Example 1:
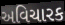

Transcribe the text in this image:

અવિચારક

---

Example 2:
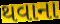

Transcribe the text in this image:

થવાના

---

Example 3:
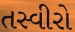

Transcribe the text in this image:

તસ્વીરો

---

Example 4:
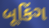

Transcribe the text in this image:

બૂકિંગ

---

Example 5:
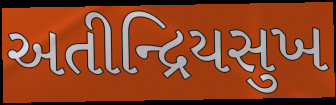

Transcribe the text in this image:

અતીન્દ્રિયસુખ